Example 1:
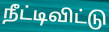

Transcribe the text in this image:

நீட்டிவிட்டு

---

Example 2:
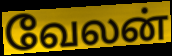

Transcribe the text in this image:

வேலன்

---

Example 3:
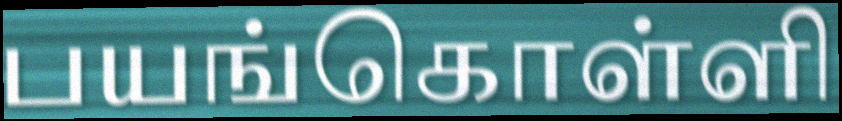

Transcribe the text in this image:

பயங்கொள்ளி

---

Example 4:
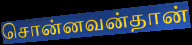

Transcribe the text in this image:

சொன்னவன்தான்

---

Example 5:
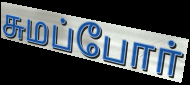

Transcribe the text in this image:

சுமப்போர்